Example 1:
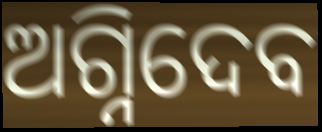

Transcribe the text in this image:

ଅଗ୍ନିଦେବ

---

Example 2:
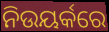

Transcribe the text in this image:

ନିଉୟର୍କରେ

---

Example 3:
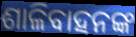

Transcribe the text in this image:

ଶାଳିବାହନଙ୍କ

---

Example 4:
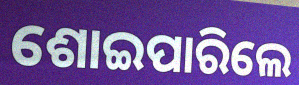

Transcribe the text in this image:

ଶୋଇପାରିଲେ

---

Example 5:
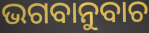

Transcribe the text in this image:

ଭଗବାନୁବାଚ